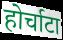
होर्चाटा